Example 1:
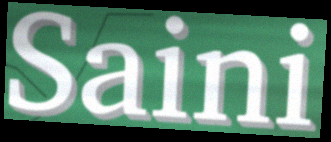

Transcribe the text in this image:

Saini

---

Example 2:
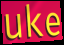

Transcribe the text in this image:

uke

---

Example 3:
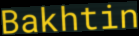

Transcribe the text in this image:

Bakhtin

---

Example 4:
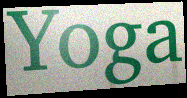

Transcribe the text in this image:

Yoga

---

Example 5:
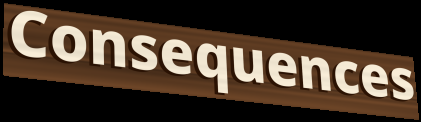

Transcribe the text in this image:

Consequences